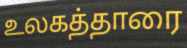
உலகத்தாரை